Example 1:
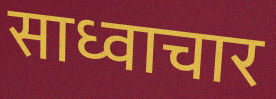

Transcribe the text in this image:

साध्वाचार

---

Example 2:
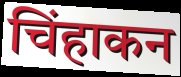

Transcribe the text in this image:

चिंहाकन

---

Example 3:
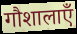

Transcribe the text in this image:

गौशालाएँ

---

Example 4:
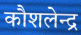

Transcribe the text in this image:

कौशलेन्द्र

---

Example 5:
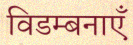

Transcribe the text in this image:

विडम्बनाएँ